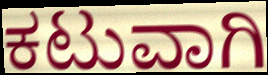
ಕಟುವಾಗಿ